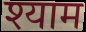
श्याम